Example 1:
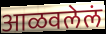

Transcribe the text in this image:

आळवलेलं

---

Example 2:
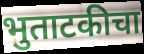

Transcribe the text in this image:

भुताटकीचा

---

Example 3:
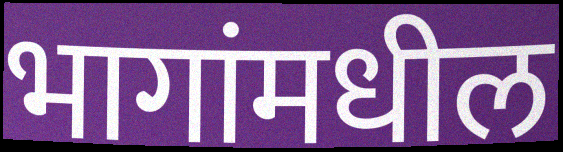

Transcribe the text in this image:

भागांमधील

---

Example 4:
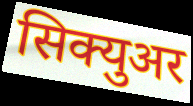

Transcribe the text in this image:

सिक्युअर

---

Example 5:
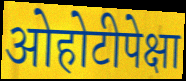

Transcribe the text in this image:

ओहोटीपेक्षा